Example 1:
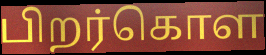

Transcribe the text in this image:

பிறர்கொள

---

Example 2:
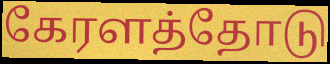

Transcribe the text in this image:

கேரளத்தோடு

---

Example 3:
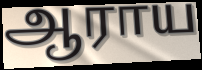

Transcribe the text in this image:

ஆராய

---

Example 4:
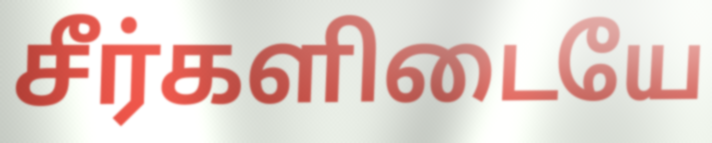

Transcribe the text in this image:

சீர்களிடையே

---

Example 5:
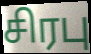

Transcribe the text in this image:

சிரபு